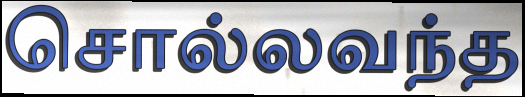
சொல்லவந்த